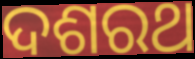
ଦଶରଥ